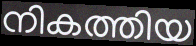
നികത്തിയ